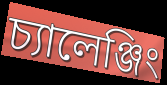
চ্যালেঞ্জিং